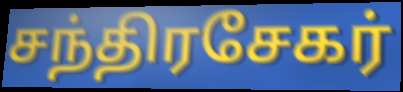
சந்திரசேகர்